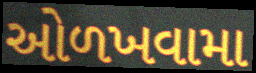
ઓળખવામા